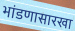
भांडणासारखा